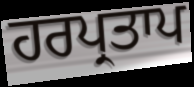
ਹਰਪ੍ਰਤਾਪ